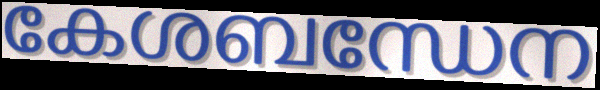
കേശബന്ധേന